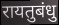
रायतुबंधु